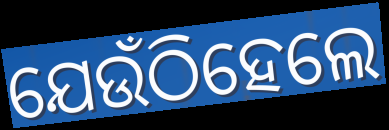
ଯେଉଁଠିହେଲେ